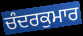
ਚੰਦਰਕੁਮਾਰ